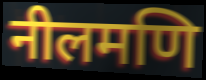
नीलमणि